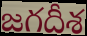
జగదీశ